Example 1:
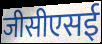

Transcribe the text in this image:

जीसीएसई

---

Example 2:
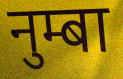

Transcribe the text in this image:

नुम्बा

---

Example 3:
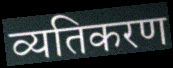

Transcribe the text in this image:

व्यतिकरण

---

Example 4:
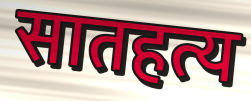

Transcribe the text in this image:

सातहत्य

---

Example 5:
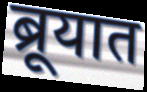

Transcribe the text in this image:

ब्रूयात